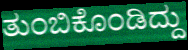
ತುಂಬಿಕೊಂಡಿದ್ದು